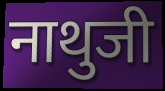
नाथुजी